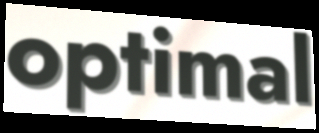
optimal